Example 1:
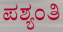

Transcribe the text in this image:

ಪಶ್ಯಂತಿ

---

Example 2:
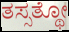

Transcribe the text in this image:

ತಸ್ಸತ್ಥೋ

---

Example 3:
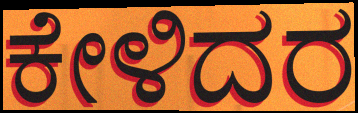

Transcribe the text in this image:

ಕೇಳಿದರ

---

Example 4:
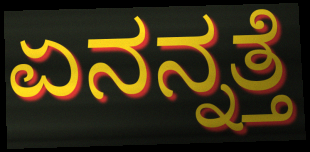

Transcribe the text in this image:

ಏನನ್ನತ್ತೆ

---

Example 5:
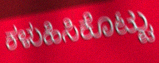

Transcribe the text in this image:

ಕಳುಹಿಸಿಕೊಟ್ಟು